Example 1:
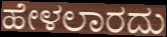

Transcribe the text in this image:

ಹೇಳಲಾರದು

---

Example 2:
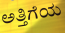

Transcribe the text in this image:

ಅತ್ತಿಗೆಯ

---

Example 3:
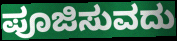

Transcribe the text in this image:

ಪೂಜಿಸುವದು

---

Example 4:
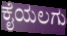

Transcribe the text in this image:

ಕೈಯಲಗು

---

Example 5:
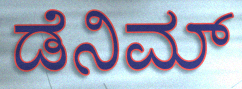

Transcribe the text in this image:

ಡೆನಿಮ್